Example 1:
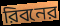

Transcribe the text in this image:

রিবনের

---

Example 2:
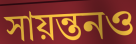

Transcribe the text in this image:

সায়ন্তনও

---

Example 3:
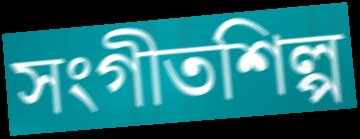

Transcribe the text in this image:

সংগীতশিল্প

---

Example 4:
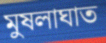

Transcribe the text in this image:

মুষলাঘাত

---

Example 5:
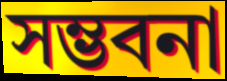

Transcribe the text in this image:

সম্ভবনা